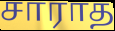
சாராத